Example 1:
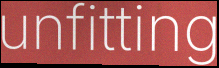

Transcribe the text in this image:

unfitting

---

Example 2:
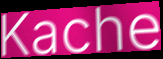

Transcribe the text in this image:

Kache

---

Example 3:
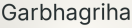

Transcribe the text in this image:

Garbhagriha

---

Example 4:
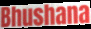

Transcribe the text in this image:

Bhushana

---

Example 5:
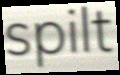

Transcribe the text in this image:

spilt